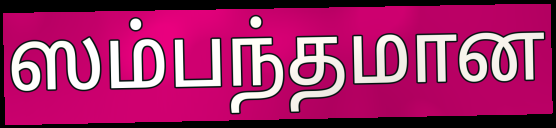
ஸம்பந்தமான